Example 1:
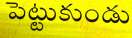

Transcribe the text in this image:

పెట్టుకుండు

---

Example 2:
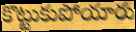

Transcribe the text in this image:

కొట్టుకుపోయారు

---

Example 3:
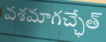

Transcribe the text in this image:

వశమాగచ్ఛేత్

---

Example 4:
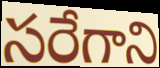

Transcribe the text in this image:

సరేగాని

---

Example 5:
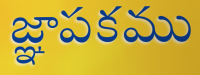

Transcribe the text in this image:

జ్ఞాపకము